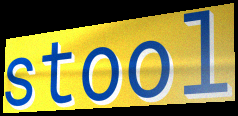
stool